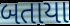
બતાયા